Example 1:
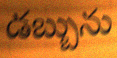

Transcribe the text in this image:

డబ్బును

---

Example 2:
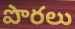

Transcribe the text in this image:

పొరలు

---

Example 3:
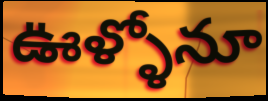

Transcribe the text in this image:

ఊళ్ళోనూ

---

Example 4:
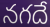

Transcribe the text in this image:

నగదే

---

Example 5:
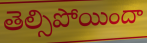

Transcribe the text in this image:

తెల్సిపోయిందా